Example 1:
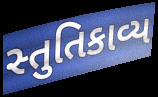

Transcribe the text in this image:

સ્તુતિકાવ્ય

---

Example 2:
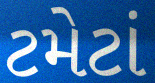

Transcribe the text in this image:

ટમેટાં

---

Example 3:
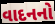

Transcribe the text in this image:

વાદનનો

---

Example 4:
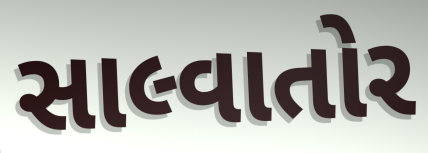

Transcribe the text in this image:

સાલ્વાતોર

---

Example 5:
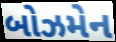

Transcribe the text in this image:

બોઝમેન